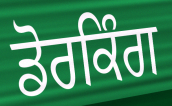
ਡੋਰਕਿੰਗ